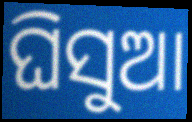
ଘିସୁଆ